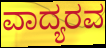
ವಾದ್ಯರವ